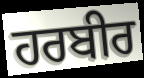
ਹਰਬੀਰ